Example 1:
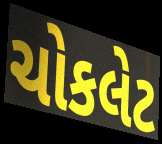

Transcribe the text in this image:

ચોકલેટ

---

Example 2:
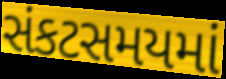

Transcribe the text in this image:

સંકટસમયમાં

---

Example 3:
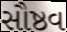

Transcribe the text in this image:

સૌષ્ઠવ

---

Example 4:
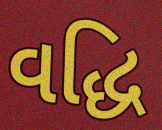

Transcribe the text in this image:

વદ્ધિ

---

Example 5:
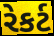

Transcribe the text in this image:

રેકર્ટ